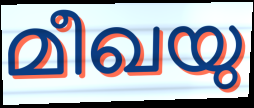
മീഖയു